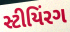
સ્ટીયિંરગ